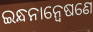
ଇନ୍ଧନାନ୍ଵେଷଣେ